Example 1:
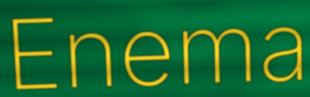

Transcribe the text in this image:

Enema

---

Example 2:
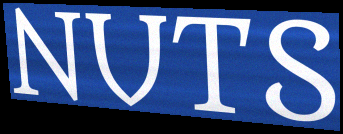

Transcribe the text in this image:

NUTS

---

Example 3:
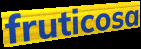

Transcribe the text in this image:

fruticosa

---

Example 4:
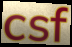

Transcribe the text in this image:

csf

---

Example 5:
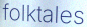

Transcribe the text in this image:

folktales